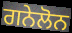
ਗਨੇਲੋਨ